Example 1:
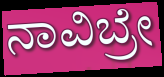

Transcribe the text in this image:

ನಾವಿಬ್ರೇ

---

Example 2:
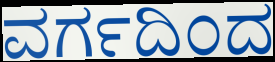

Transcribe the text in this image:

ವರ್ಗದಿಂದ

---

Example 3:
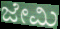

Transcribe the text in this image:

ಜೇಮಿ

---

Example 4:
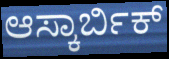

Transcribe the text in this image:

ಆಸ್ಕಾರ್ಬಿಕ್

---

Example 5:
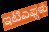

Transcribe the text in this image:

ಇಟಿಎಫ್ಗಳು